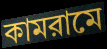
কামরামে